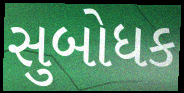
સુબોધક